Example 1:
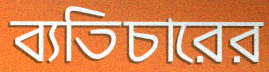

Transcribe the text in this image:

ব্যতিচারের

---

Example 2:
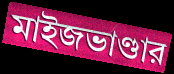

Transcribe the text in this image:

মাইজভাণ্ডার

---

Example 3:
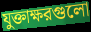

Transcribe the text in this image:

যুক্তাক্ষরগুলো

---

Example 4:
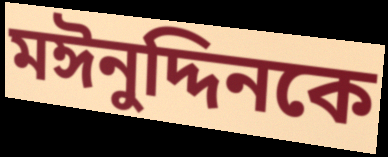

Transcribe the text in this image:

মঈনুদ্দিনকে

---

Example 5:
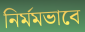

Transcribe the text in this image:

নির্মমভাবে